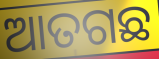
ଆତଗଛ